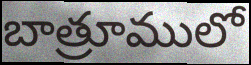
బాత్రూములో